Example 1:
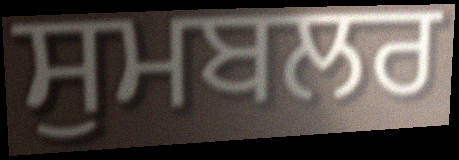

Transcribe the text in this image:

ਸੁਮਬਲਰ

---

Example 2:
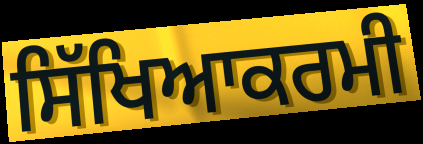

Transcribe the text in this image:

ਸਿੱਖਿਆਕਰਮੀ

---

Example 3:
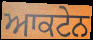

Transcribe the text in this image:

ਆਕਟੇਨ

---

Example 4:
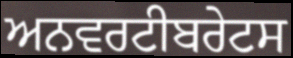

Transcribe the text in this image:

ਅਨਵਰਟੀਬਰੇਟਸ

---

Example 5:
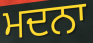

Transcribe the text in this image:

ਮਦਨਾ